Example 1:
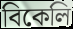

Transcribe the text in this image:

বিকেলি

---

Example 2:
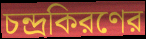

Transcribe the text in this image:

চন্দ্রকিরণের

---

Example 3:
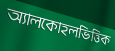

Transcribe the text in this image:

অ্যালকোহলভিত্তিক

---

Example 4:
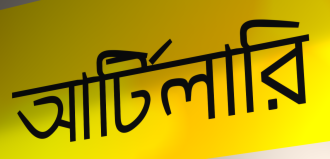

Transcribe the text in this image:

আর্টিলারি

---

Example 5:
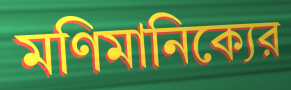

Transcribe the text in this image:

মণিমানিক্যের